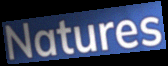
Natures